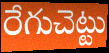
రేగుచెట్టు